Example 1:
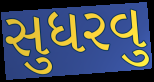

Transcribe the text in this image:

સુધરવુ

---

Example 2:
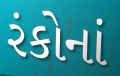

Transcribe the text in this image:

રંકોનાં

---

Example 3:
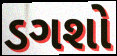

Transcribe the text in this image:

ડગશો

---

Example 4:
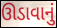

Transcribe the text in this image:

ઊડાવાનું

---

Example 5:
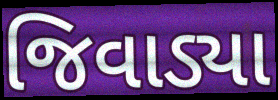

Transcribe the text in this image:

જિવાડ્યા